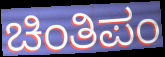
ಚಿಂತಿಪಂ